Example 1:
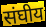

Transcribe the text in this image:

संघीय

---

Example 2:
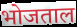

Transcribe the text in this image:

भोजताल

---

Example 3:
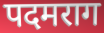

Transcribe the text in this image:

पदमराग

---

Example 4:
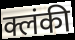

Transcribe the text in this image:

क्लंकी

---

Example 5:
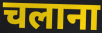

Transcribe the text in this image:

चलाना